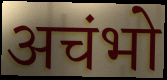
अचंभो